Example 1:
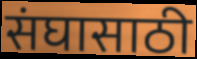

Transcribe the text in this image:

संघासाठी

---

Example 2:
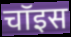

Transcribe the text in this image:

चॉइस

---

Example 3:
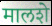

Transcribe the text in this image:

मालशे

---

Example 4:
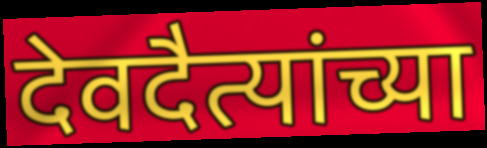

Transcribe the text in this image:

देवदैत्यांच्या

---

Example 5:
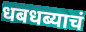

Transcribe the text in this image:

धबधब्याचं